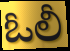
ఓలీ